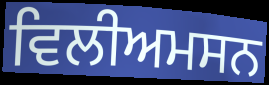
ਵਿਲੀਅਮਸਨ